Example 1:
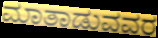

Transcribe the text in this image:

ಮಾತಾಡುವವರ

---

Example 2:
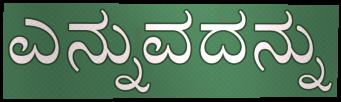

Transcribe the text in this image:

ಎನ್ನುವದನ್ನು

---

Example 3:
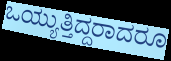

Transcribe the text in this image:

ಒಯ್ಯುತ್ತಿದ್ದರಾದರೂ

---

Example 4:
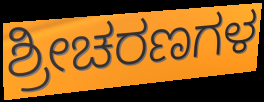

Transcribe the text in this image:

ಶ್ರೀಚರಣಗಳ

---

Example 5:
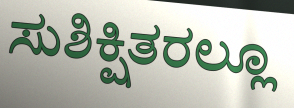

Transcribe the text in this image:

ಸುಶಿಕ್ಷಿತರಲ್ಲೂ